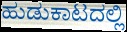
ಹುಡುಕಾಟದಲ್ಲಿ